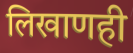
लिखाणही